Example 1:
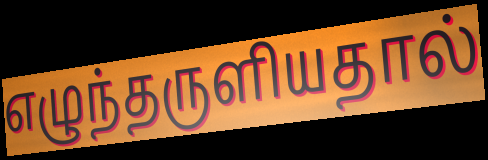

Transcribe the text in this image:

எழுந்தருளியதால்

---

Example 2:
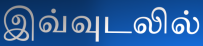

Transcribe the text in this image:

இவ்வுடலில்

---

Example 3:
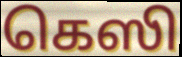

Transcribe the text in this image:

கெஸி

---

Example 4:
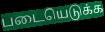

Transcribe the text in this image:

படையெடுக்க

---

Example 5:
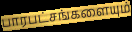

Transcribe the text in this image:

பாரபட்சங்களையும்